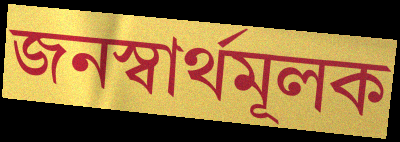
জনস্বার্থমূলক